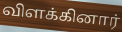
விளக்கினார்